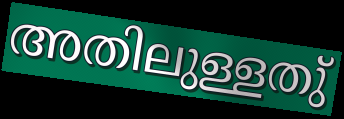
അതിലുള്ളതു്